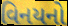
વિનયનો